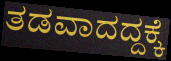
ತಡವಾದದ್ದಕ್ಕೆ